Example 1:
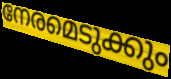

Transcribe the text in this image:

നേരമെടുക്കും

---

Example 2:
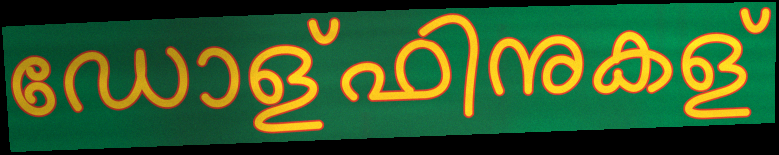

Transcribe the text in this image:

ഡോള്ഫിനുകള്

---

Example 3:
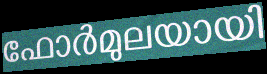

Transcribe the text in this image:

ഫോർമുലയായി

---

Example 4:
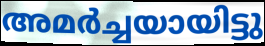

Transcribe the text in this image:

അമർച്ചയായിട്ടു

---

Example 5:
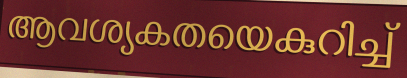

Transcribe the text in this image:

ആവശ്യകതയെകുറിച്ച്